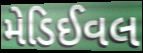
મેડિઈવલ